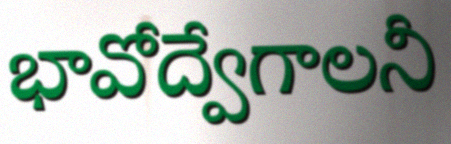
భావోద్వేగాలనీ